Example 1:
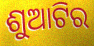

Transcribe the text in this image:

ଶୁଆଟିର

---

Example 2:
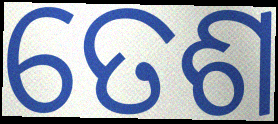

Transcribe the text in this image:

ତେଶ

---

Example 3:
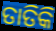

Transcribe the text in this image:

ତାତିକି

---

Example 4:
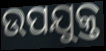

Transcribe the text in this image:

ଉପଯୁକ୍ତ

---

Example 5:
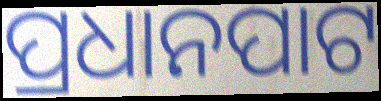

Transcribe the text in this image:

ପ୍ରଧାନପାଟ